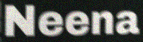
Neena